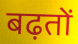
बढ़तों